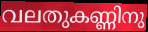
വലതുകണ്ണിനു